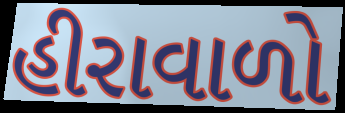
હીરાવાળો